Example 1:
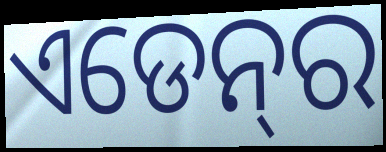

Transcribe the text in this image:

ଏଡେନ୍‍ର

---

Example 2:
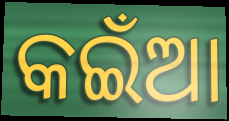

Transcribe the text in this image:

କଇଁଆ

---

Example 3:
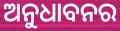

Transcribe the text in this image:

ଅନୁଧାବନର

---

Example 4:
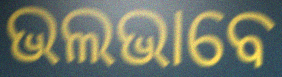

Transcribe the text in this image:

ଭଲଭାବେ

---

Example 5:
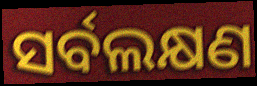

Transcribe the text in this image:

ସର୍ବଲକ୍ଷଣ